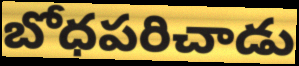
బోధపరిచాడు